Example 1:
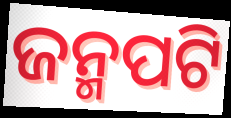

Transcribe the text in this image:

ଜନ୍ମପଟି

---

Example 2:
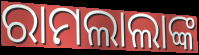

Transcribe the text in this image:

ରାମଲାଲାଙ୍କ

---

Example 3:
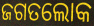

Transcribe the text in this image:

ଜଗତଲୋକ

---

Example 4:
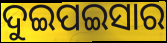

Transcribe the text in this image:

ଦୁଇପଇସାର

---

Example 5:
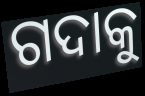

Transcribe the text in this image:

ଗଦାକୁ